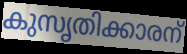
കുസൃതിക്കാരന്